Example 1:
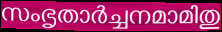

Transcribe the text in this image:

സംഭൃതാർച്ചനമാമിതു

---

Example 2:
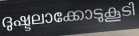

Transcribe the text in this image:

ദുഷ്ടലാക്കോടുകൂടി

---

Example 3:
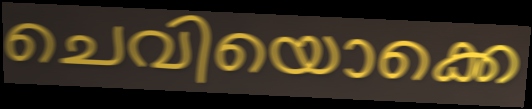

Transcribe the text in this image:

ചെവിയൊക്കെ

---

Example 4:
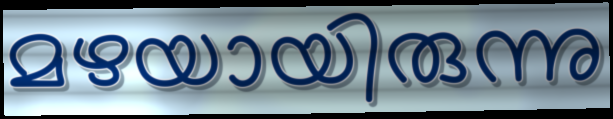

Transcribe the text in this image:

മഴയായിരുന്നു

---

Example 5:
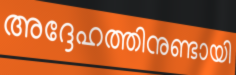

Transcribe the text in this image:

അദ്ദേഹത്തിനുണ്ടായി